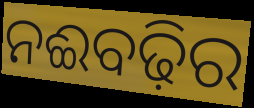
ନଈବଢ଼ିର